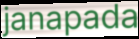
janapada